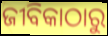
ଜୀବିକାଠାରୁ